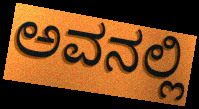
ಅವನಲ್ಲಿ